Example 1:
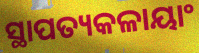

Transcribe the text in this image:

ସ୍ଥାପତ୍ୟକଳାୟାଂ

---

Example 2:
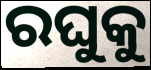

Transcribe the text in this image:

ରଘୁକୁ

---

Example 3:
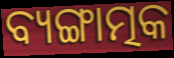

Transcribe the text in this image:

ବ୍ୟଙ୍ଗାତ୍ମକ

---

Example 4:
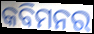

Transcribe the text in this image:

କବିମନର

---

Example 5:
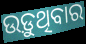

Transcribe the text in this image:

ଉଡ଼ୁଥିବାର